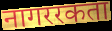
नागररकता